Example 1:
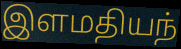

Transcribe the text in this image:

இளமதியந்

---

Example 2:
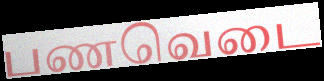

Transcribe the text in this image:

பணவெடை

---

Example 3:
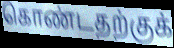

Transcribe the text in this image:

கொண்டதற்குக்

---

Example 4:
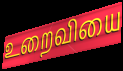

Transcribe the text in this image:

உறைவியை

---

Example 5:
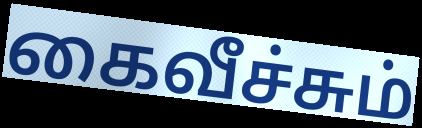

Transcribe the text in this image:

கைவீச்சும்